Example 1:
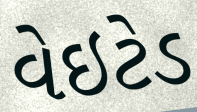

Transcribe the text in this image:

વેઇટેડ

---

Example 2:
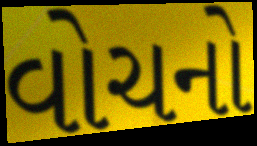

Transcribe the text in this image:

વોચનો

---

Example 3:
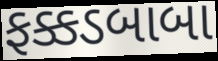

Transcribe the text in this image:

ફક્કડબાબા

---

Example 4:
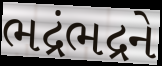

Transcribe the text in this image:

ભદ્રંભદ્રને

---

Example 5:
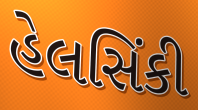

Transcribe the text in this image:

હેલસિંકી